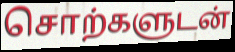
சொற்களுடன்